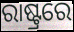
ରାଷ୍ଟ୍ରରେ